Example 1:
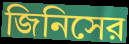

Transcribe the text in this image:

জিনিসের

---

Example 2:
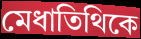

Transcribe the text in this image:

মেধাতিথিকে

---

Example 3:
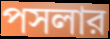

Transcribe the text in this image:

পসলার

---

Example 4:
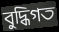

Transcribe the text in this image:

বুদ্ধিগত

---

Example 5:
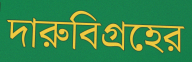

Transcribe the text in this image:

দারুবিগ্রহের